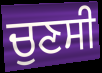
ਚੁਣਸੀ